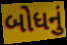
બોધનું